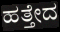
ಹತ್ತೇದ